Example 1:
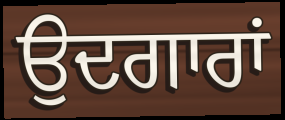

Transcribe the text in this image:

ਉਦਗਾਰਾਂ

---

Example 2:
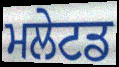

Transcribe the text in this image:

ਮਲੇਟਡ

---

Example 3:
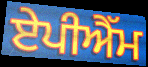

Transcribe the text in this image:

ਏਪੀਐੱਮ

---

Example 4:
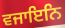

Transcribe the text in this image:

ਵਜਾਇਨਿ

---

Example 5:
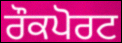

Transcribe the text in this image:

ਰੌਕਪੋਰਟ